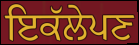
ਇਕੱਲੇਪਣ